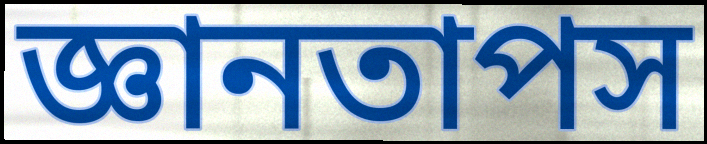
জ্ঞানতাপস